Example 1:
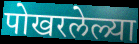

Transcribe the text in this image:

पोखरलेल्या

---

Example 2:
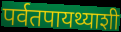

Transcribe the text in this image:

पर्वतपायथ्याशी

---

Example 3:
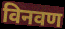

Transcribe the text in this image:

विनवण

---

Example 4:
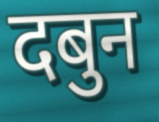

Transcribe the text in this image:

दबुन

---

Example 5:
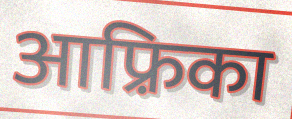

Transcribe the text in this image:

आफ़्रिका